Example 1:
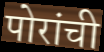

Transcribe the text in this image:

पोरांची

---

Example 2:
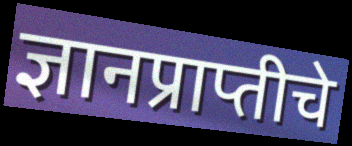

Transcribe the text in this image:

ज्ञानप्राप्तीचे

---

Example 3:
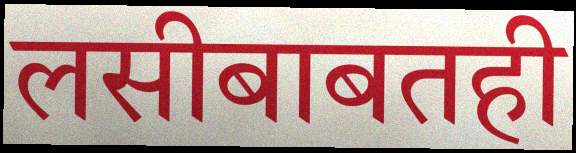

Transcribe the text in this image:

लसीबाबतही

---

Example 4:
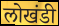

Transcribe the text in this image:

लोखंडी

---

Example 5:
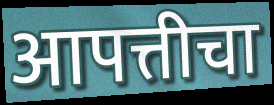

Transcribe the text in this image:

आपत्तीचा